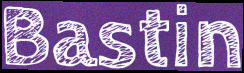
Bastin